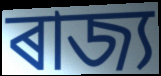
ৰাজ্য